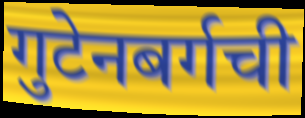
गुटेनबर्गची